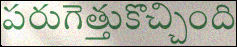
పరుగెత్తుకొచ్చింది